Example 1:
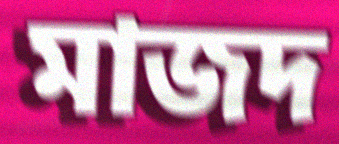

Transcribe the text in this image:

মাজদ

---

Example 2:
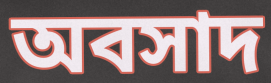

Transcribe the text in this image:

অবসাদ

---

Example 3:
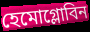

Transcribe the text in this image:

হেমোগ্লোবিন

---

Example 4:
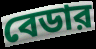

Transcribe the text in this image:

বেডার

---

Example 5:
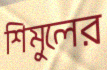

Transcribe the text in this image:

শিমুলের